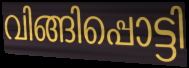
വിങ്ങിപ്പൊട്ടി